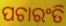
ପଚାରଂତି